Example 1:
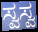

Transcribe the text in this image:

ಸ್ವಸ್ವ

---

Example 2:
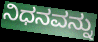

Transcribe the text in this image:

ನಿಧನವನ್ನು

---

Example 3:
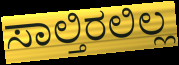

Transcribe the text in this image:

ಸಾಲ್ತಿರಲಿಲ್ಲ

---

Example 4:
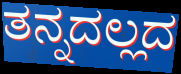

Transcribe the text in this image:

ತನ್ನದಲ್ಲದ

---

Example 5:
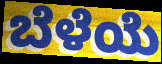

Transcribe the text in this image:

ಬೆಳೆಯೆ